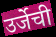
उर्जेची